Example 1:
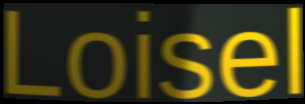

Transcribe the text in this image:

Loisel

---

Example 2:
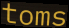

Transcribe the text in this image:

toms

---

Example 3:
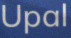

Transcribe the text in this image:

Upal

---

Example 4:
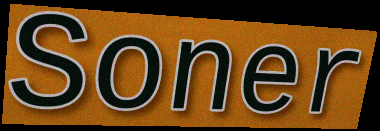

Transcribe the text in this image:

Soner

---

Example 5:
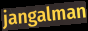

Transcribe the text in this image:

jangalman